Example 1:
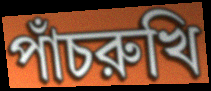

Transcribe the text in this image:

পাঁচরুখি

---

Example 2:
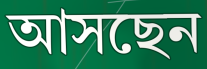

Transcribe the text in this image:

আসছেন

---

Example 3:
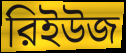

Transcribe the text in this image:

রিইউজ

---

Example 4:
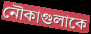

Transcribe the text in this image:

নৌকাগুলাকে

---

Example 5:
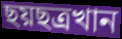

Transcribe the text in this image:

ছয়ছত্রখান